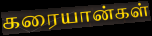
கரையான்கள்